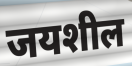
जयशील